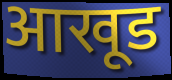
आखूड